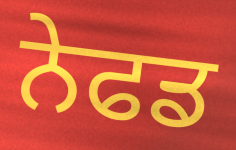
ਨੇਫਡ